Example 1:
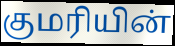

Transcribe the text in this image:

குமரியின்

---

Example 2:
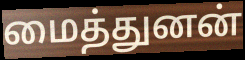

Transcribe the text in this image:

மைத்துனன்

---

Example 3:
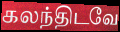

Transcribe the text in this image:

கலந்திடவே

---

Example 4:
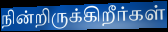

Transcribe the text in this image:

நின்றிருக்கிறீர்கள்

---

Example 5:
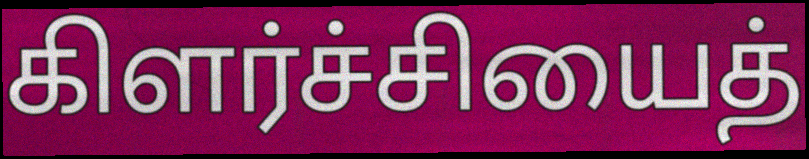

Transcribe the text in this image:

கிளர்ச்சியைத்